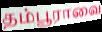
தம்பூராவை